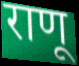
राणू